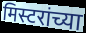
मिस्टरांच्या